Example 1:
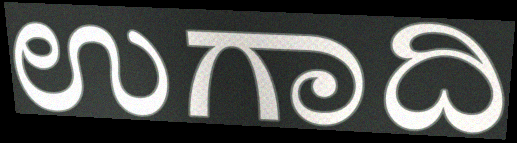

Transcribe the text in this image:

ಉಗಾದಿ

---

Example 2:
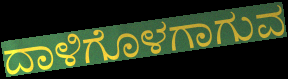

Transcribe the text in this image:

ದಾಳಿಗೊಳಗಾಗುವ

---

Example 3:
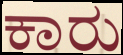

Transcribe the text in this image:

ಕಾರು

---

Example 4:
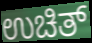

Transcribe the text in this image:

ಉಚಿತ್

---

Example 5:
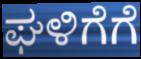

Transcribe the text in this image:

ಘಳಿಗೆಗೆ